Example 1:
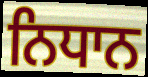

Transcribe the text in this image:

ਨਿਧਾਨ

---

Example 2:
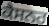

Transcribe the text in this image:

ਕੈਸਨਰ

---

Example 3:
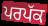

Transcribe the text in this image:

ਪਰਪੱਕ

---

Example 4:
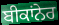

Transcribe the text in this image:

ਬੀਕਾਂਨੇਰ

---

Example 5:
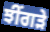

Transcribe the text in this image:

ਝੀਂਗੜੇ